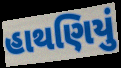
હાથણિયું